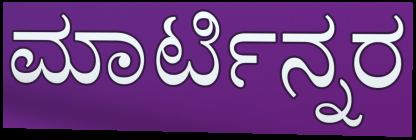
ಮಾರ್ಟಿನ್ನರ